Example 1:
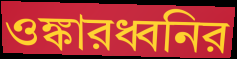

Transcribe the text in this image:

ওঙ্কারধ্বনির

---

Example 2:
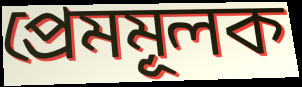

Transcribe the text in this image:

প্রেমমূলক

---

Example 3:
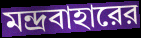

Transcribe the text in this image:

মন্দ্রবাহারের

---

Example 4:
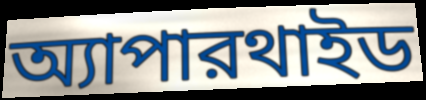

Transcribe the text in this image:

অ্যাপারথাইড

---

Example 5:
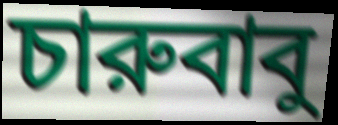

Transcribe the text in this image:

চারুবাবু